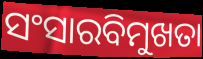
ସଂସାରବିମୁଖତା